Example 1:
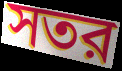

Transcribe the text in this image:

সতর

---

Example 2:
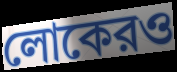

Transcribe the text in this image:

লোকেরও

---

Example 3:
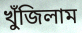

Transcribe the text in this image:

খুঁজিলাম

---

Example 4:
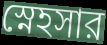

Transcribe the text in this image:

স্নেহসার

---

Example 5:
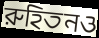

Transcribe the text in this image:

রুহিতনও